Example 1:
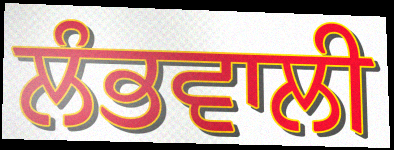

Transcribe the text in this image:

ਲੰਭਵਾਲੀ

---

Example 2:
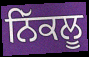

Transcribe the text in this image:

ਨਿੱਕਲੂ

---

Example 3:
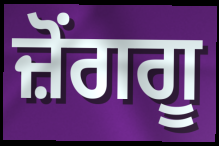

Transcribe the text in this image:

ਜ਼ੋਂਗਗੂ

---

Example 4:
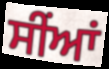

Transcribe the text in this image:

ਸੀਂਆਂ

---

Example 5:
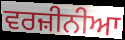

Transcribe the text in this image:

ਵਰਜ਼ੀਨੀਆ